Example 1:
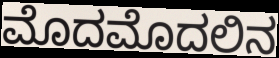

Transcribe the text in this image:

ಮೊದಮೊದಲಿನ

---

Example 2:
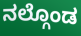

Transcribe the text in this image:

ನಲ್ಗೊಂಡ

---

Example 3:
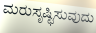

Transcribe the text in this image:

ಮರುಸೃಷ್ಟಿಸುವುದು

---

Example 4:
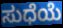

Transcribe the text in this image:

ಸುಧೆಯೆ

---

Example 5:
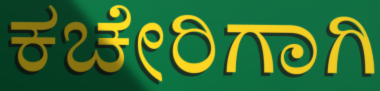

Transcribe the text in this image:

ಕಚೇರಿಗಾಗಿ